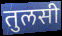
तुलसी